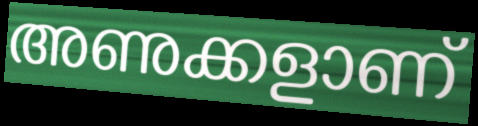
അണുക്കളാണ്